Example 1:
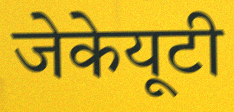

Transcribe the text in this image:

जेकेयूटी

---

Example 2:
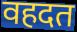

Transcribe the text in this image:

वहदत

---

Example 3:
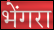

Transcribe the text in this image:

भेंगरा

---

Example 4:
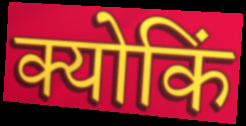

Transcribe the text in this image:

क्योकिं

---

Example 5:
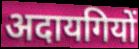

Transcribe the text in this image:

अदायगियों